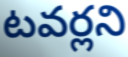
టవర్లని